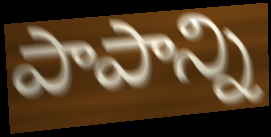
పాపాన్ని